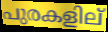
പുരകളില്